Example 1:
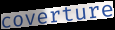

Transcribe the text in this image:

coverture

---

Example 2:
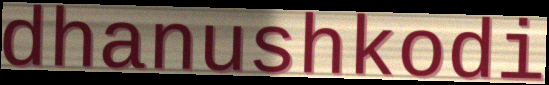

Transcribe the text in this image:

dhanushkodi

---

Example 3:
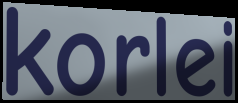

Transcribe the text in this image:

korlei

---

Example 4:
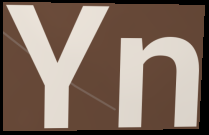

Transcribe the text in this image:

Yn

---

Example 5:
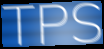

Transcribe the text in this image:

TPS